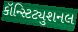
કૉન્સ્ટિટ્યુશનલ